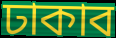
ঢাকাব